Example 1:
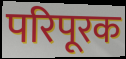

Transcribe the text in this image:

परिपूरक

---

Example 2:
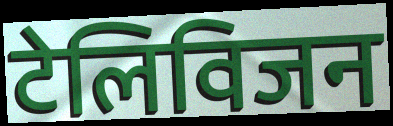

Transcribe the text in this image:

टेलिविजन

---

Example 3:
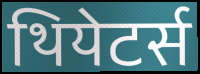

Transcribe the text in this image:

थियेटर्स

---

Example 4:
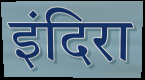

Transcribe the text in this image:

इंदिरा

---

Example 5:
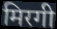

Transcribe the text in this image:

मिरगी